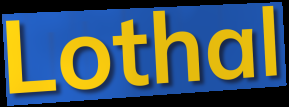
Lothal